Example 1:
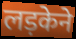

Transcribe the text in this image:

लड़केने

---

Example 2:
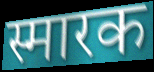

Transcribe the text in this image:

स्मारक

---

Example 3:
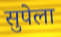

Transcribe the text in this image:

सुपेला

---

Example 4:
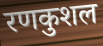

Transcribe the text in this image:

रणकुशल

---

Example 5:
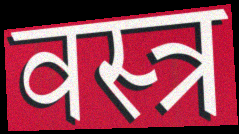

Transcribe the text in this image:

वस्त्र